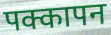
पक्कापन